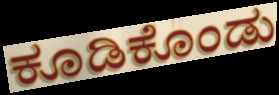
ಕೂಡಿಕೊಂಡು